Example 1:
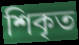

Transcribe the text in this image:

শিকৃত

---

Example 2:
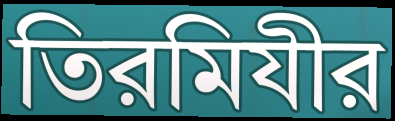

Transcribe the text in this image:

তিরমিযীর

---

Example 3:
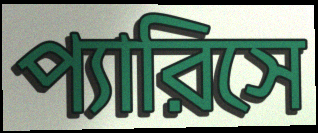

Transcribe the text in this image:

প্যারিসে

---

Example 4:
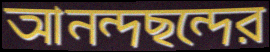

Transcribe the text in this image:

আনন্দছন্দের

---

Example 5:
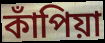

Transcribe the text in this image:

কাঁপিয়া